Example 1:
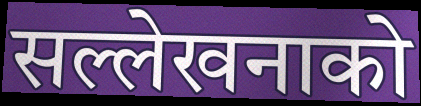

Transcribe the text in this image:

सल्लेखनाको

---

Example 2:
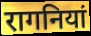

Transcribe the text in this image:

रागनियां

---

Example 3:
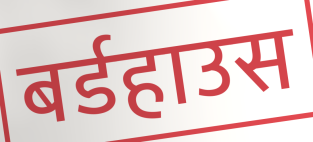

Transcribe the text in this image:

बर्डहाउस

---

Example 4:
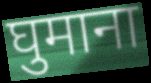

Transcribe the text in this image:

घुमाना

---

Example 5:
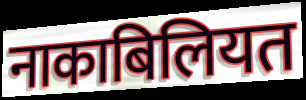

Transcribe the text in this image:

नाकाबिलियत